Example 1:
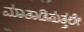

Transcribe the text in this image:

ಮಾತಾಡಿಸುತ್ತಲೇ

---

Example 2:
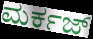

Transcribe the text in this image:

ಮರ್ಕಜ್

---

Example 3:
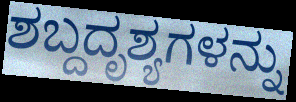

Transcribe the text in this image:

ಶಬ್ದದೃಶ್ಯಗಳನ್ನು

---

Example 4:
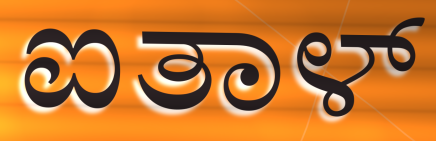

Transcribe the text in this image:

ಐತಾಳ್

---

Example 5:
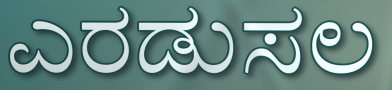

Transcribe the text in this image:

ಎರಡುಸಲ